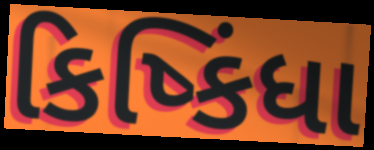
કિષ્કિંધા